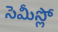
సెమీస్లో